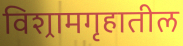
विश्रामगृहातील